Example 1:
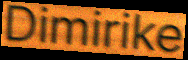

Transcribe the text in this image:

Dimirike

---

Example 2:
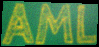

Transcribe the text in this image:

AML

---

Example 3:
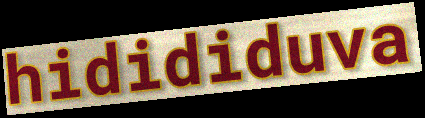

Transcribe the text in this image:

hidididuva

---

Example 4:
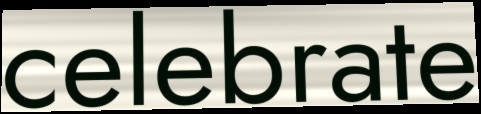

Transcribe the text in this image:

celebrate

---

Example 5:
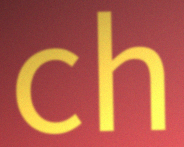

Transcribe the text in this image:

ch